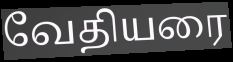
வேதியரை